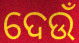
ଦେଉଁ